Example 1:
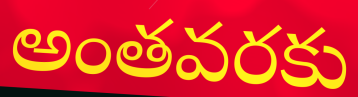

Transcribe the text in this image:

అంతవరకు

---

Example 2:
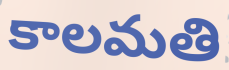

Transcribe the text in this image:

కాలమతి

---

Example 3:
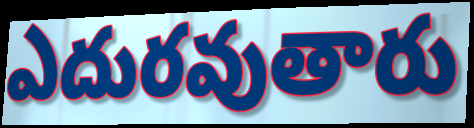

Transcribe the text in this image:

ఎదురవుతారు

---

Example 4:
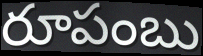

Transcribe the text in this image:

రూపంబు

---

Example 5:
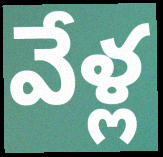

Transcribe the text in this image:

వేళ్ల